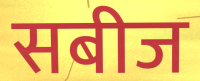
सबीज